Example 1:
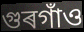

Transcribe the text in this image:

গুৰগাঁও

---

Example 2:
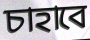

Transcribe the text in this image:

চাহাবে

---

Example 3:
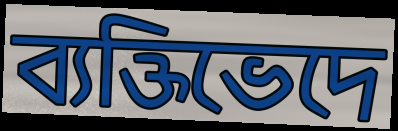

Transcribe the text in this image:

ব্যক্তিভেদে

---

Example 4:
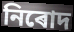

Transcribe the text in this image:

নিৰোদ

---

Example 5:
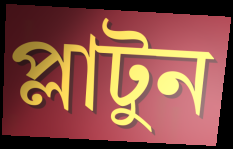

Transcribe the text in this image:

প্লাটুন